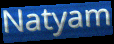
Natyam